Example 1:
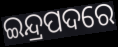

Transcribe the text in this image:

ଇନ୍ଦ୍ରପଦରେ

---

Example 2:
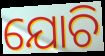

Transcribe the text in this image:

ଯୋଚି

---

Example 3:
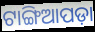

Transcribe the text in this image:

ଟାଙ୍ଗିଆପଡ଼ା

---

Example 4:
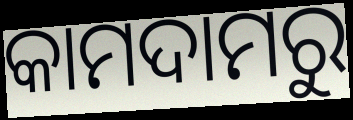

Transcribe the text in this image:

କାମଦାମରୁ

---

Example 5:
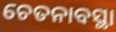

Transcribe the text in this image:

ଚେତନାବସ୍ଥା